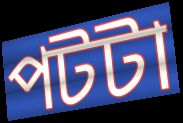
পটটা